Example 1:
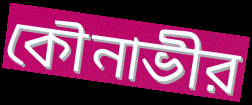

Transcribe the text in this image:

কৌনাভীর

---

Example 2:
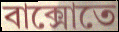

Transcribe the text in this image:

বাক্সোতে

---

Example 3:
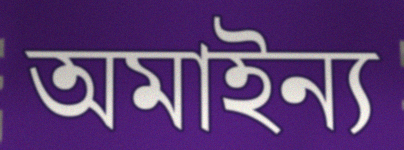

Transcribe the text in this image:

অমাইন্য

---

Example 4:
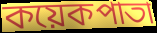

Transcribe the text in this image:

কয়েকপাতা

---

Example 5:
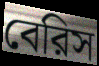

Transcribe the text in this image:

বেরিস